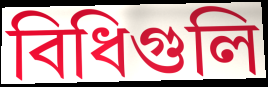
বিধিগুলি